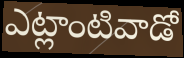
ఎట్లాంటివాడో